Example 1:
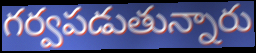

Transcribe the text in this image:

గర్వపడుతున్నారు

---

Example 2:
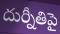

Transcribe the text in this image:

దుర్నీతిపై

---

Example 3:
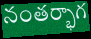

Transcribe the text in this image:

నంతర్భాగ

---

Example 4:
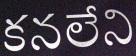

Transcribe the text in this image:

కనలేని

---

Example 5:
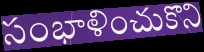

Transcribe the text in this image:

సంభాళించుకొని